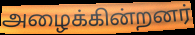
அழைக்கின்றனர்